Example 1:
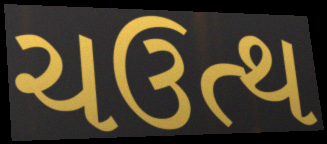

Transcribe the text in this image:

ચઉત્થ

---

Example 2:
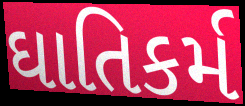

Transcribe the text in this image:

ઘાતિકર્મ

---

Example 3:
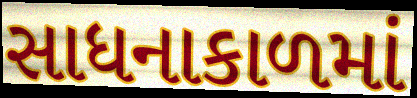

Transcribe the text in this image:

સાધનાકાળમાં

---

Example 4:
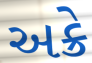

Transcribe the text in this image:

અક્રે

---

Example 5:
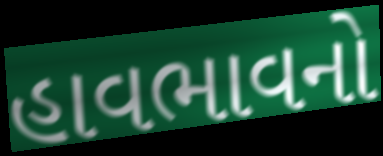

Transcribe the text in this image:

હાવભાવનો